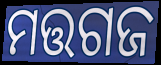
ମତ୍ତଗଜ